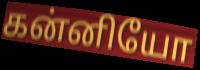
கன்னியோ